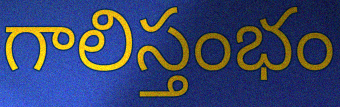
గాలిస్తంభం